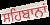
ਸਹਿਬਾਨਾਂ